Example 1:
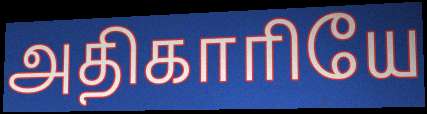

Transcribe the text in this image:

அதிகாரியே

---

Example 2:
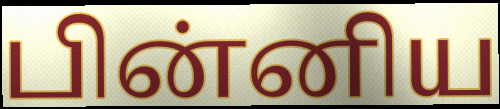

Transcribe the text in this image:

பின்னிய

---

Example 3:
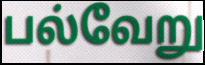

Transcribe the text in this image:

பல்வேறு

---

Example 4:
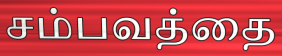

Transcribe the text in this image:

சம்பவத்தை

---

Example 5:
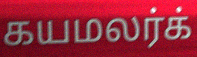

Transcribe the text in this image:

கயமலர்க்